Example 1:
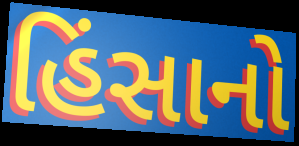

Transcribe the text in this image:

હિંસાનો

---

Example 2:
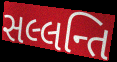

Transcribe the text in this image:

સલ્લન્તિ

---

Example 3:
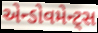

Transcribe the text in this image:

એન્ડોવમેન્ટ્સ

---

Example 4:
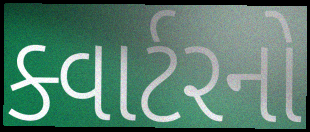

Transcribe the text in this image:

ક્વાર્ટરનો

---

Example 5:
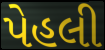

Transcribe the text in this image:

પેહલી